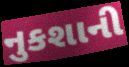
નુકશાની